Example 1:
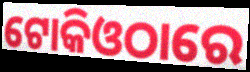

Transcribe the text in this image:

ଟୋକିଓଠାରେ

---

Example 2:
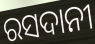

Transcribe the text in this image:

ରସଦାନୀ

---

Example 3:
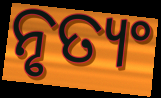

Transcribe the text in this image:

ନୃତ୍ୟଂ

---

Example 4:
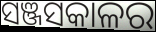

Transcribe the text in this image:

ସଞ୍ଜସକାଳର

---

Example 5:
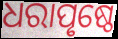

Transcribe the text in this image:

ଧରାପୃଷ୍ଠେ